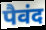
पैवंद